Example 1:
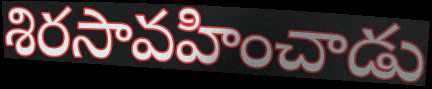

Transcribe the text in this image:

శిరసావహించాడు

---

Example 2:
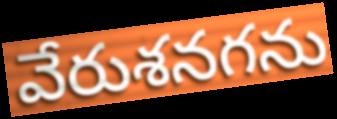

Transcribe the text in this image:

వేరుశనగను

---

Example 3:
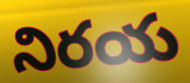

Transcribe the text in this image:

నిరయ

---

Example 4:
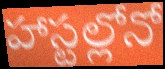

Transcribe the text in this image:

హాస్టల్లోనో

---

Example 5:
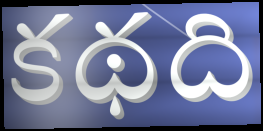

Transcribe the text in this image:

కథది